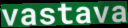
vastava